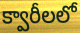
క్వారీలలో